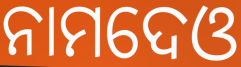
ନାମଦେଓ